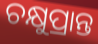
ଚକ୍ଷୁପ୍ରାନ୍ତ